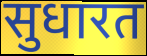
सुधारत